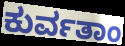
ಕುರ್ವತಾಂ